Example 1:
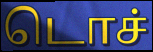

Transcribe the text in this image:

டொச்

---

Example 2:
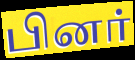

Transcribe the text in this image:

பினர்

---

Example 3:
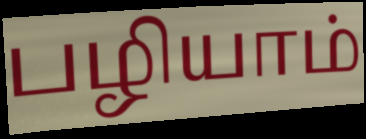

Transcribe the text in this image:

பழியாம்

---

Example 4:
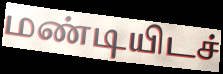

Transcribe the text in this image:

மண்டியிடச்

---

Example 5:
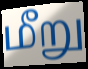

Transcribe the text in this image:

மீறு